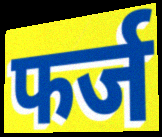
फर्ज